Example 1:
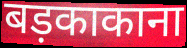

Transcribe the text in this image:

बड़काकाना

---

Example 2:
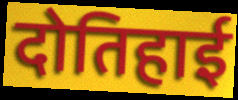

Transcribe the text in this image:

दोतिहाई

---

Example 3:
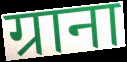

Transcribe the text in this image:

ग्राना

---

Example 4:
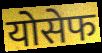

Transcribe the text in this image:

योसेफ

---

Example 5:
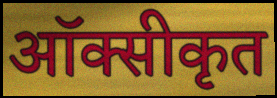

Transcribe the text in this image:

ऑक्सीकृत